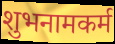
शुभनामकर्म